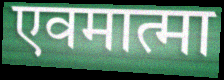
एवमात्मा